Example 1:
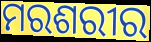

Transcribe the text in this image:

ମରଶରୀର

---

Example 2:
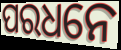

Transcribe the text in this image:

ପରଧନେ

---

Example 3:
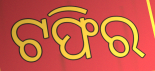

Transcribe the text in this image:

ଟଫିର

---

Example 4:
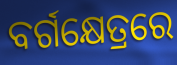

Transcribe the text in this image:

ବର୍ଗକ୍ଷେତ୍ରରେ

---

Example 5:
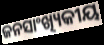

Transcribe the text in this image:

ଜନସାଂଖ୍ୟିକୀୟ